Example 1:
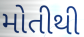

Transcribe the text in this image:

મોતીથી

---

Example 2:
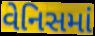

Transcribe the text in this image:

વેનિસમાં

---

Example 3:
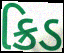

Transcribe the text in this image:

ક્રિડ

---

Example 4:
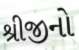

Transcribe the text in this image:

શ્રીજીનો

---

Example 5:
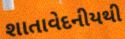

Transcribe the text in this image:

શાતાવેદનીયથી